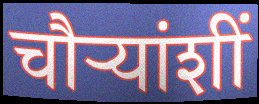
चौर्‍यांशीं